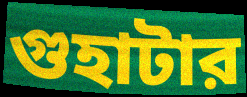
গুহাটার